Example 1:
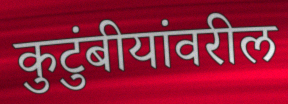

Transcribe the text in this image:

कुटुंबीयांवरील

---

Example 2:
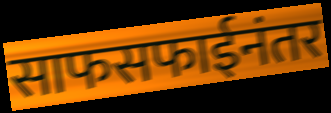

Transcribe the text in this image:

साफसफाईनंतर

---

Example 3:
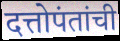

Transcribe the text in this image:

दत्तोपंतांची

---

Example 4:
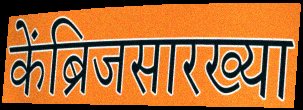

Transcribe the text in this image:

केंब्रिजसारख्या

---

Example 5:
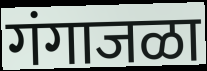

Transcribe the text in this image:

गंगाजळा